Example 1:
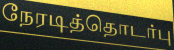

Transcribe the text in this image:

நேரடித்தொடர்பு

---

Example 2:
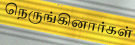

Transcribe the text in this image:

நெருங்கினார்கள்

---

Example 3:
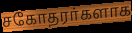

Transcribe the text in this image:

சகோதரர்களாக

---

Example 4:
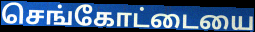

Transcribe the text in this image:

செங்கோட்டையை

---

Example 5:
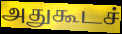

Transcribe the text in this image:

அதுகூடச்